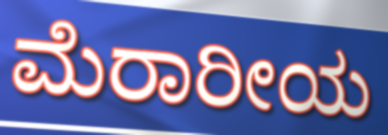
ಮೆರಾರೀಯ